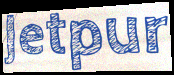
Jetpur